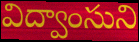
విద్వాంసుని